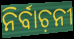
ନିର୍ବାଚ଼ନୀ